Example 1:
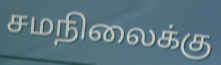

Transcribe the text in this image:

சமநிலைக்கு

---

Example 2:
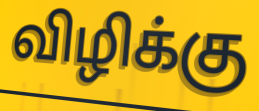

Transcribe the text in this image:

விழிக்கு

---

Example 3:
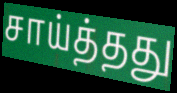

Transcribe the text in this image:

சாய்த்தது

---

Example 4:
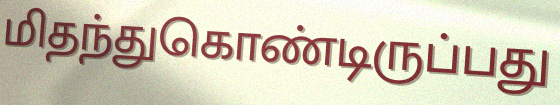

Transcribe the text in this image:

மிதந்துகொண்டிருப்பது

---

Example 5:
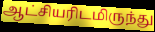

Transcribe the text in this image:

ஆட்சியரிடமிருந்து